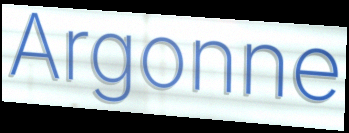
Argonne